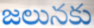
జలునకు